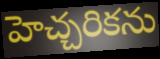
హెచ్చరికను